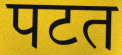
पटत